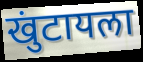
खुंटायला